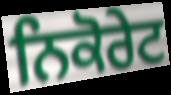
ਨਿਕੋਰੇਟ